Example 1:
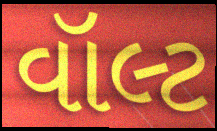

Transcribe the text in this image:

વૉલ્ટ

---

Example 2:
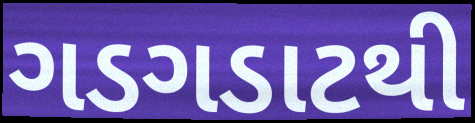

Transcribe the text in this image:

ગડગડાટથી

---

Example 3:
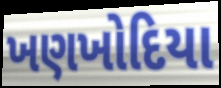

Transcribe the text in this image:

ખણખોદિયા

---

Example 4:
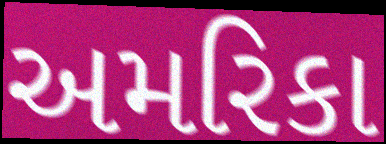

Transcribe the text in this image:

અમરિકા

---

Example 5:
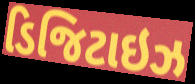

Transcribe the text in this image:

ડિજિટાઇઝ